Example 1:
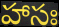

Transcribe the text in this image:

హాసః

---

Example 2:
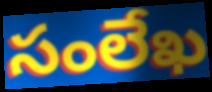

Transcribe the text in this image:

సంలేఖ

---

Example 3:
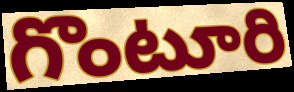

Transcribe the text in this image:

గొంటూరి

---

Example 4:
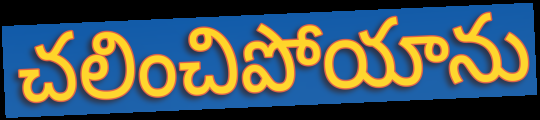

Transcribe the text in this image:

చలించిపోయాను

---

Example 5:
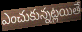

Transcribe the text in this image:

ఎంచుకున్నట్లయితే